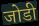
जोडी